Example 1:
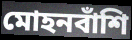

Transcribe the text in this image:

মোহনবাঁশি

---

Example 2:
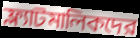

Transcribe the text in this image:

ফ্ল্যাটমালিকদের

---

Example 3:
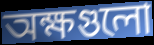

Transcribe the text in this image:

অক্ষগুলো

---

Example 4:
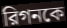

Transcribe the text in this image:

রিগনকে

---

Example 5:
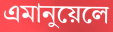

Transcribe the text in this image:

এমানুয়েলে